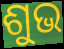
ଶୁଭ